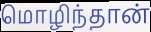
மொழிந்தான்